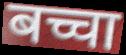
बच्चा